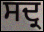
ਸਦ੍ਰ